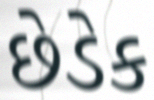
છેડેક